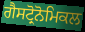
ਗੈਸਟ੍ਰੋਨੋਮਿਕਲ